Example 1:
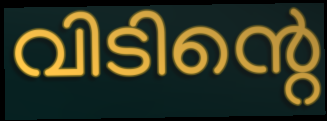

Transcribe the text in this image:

വിടിന്റെ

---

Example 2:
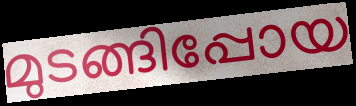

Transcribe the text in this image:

മുടങ്ങിപ്പോയ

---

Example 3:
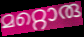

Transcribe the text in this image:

മറ്റൊരു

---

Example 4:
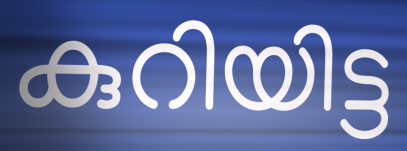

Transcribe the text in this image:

കുറിയിട്ട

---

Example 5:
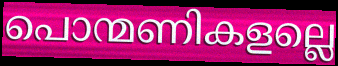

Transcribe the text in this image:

പൊന്മണികളല്ലെ